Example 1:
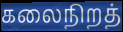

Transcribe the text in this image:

கலைநிறத்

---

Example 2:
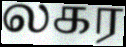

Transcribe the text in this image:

லகர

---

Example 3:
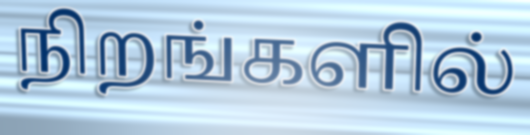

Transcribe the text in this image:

நிறங்களில்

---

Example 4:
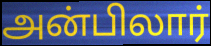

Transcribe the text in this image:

அன்பிலார்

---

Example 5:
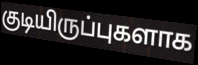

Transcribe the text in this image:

குடியிருப்புகளாக